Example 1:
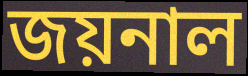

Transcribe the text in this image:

জয়নাল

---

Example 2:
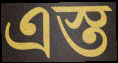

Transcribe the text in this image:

এস্ত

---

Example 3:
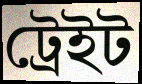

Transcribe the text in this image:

ট্রেইট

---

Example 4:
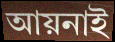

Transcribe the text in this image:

আয়নাই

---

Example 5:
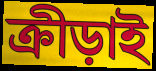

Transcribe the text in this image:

ক্রীড়াই